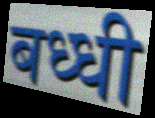
बध्धी